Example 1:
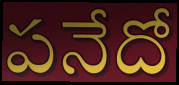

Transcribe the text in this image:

పనేదో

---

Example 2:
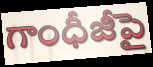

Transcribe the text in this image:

గాంధీజీపై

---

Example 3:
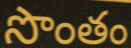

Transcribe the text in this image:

సొంతం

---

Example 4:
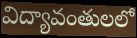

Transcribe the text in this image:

విద్యావంతులలో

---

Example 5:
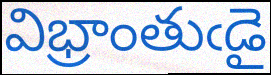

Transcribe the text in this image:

విభ్రాంతుఁడై